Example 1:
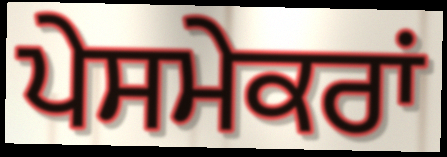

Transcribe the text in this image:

ਪੇਸਮੇਕਰਾਂ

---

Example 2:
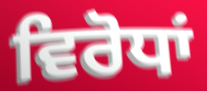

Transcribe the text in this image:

ਵਿਰੋਧਾਂ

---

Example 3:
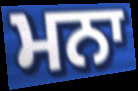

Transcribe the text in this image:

ਮਨਾ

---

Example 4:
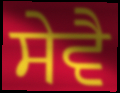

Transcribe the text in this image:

ਸੇਵੈ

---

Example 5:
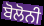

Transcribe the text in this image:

ਬੋਲੋਨੀ